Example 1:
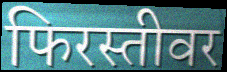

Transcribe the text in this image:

फिरस्तीवर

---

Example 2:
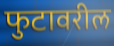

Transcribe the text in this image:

फुटावरील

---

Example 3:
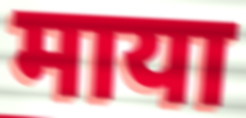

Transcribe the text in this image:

माया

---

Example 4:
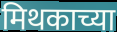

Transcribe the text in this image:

मिथकाच्या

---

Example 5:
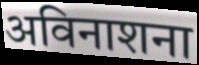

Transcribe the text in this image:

अविनाशना